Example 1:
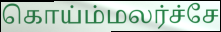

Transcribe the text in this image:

கொய்ம்மலர்ச்சே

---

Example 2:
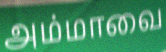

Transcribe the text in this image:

அம்மாவை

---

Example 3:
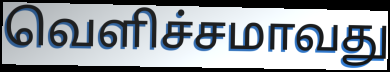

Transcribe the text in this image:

வெளிச்சமாவது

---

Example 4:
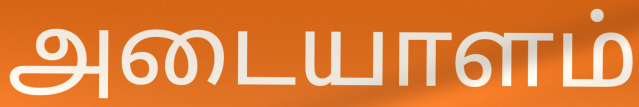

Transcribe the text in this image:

அடையாளம்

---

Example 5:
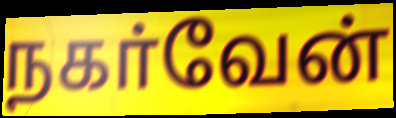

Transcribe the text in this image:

நகர்வேன்